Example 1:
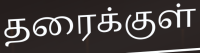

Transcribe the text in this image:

தரைக்குள்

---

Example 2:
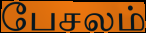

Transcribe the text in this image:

பேசலம்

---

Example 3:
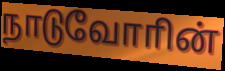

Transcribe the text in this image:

நாடுவோரின்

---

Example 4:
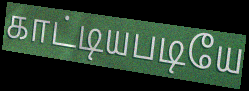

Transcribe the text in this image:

காட்டியபடியே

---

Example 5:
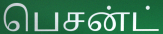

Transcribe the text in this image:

பெசன்ட்